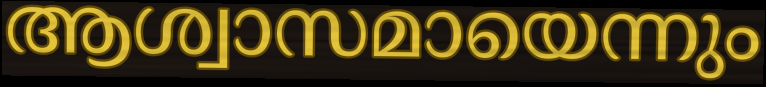
ആശ്വാസമായെന്നും